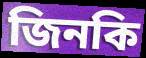
জিনকি